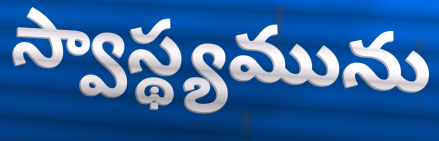
స్వాస్థ్యమును